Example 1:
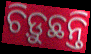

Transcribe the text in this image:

ଚିଡ଼ୁଛନ୍ତି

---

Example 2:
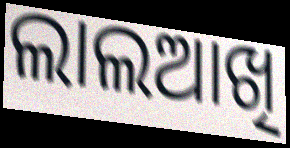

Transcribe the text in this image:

ଲାଲଆଖି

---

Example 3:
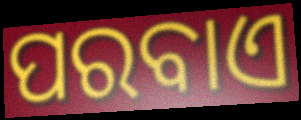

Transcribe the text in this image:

ପରବାଏ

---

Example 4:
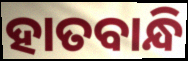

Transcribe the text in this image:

ହାତବାନ୍ଧି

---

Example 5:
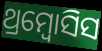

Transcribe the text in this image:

ଥ୍ରମ୍ବୋସିସ